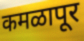
कमळापूर